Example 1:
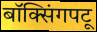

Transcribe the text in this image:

बॉक्सिंगपटू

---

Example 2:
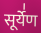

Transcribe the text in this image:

सूर्ये॑ण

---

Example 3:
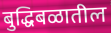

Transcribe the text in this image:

बुद्धिबळातील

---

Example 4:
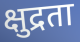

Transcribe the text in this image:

क्षुद्रता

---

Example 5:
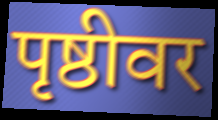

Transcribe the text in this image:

पृष्ठीवर